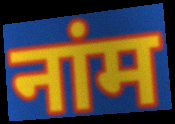
नांम